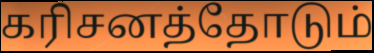
கரிசனத்தோடும்